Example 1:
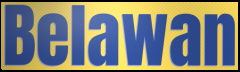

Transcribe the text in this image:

Belawan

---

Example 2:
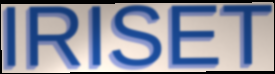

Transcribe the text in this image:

IRISET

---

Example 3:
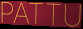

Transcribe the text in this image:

PATTU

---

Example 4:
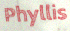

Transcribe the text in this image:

Phyllis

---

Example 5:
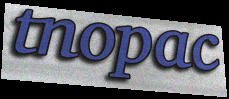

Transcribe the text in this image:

tnopac